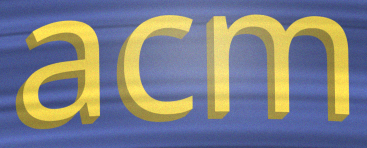
acm